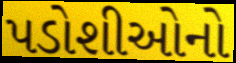
પડોશીઓનો